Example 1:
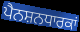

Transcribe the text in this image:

ਪੈਨਸ਼ਨਧਾਰਕਾਂ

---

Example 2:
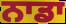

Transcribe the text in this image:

ਨਾਡਾ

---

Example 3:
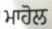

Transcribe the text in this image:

ਮਾਹੋਲ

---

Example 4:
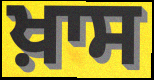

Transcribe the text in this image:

ਖ਼ਾਸ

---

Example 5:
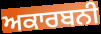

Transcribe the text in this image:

ਅਕਾਰਬਨੀ